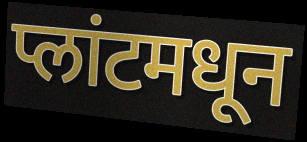
प्लांटमधून